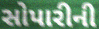
સોપારીની